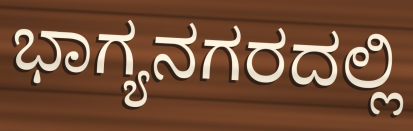
ಭಾಗ್ಯನಗರದಲ್ಲಿ